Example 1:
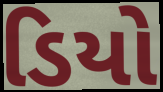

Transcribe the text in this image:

ડિયો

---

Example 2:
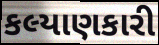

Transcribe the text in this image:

કલ્યાણકારી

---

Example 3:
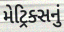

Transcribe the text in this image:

મેટ્રિક્સનું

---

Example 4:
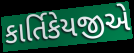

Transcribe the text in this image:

કાર્તિકેયજીએ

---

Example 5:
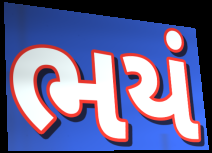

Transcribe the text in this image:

ભયં